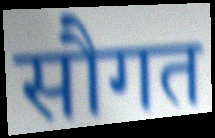
सौगत